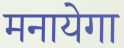
मनायेगा